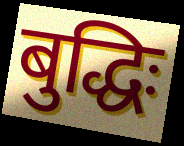
बुद्धिः